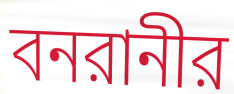
বনরানীর